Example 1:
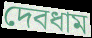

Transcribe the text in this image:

দেবধাম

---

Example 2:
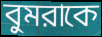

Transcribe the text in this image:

বুমরাকে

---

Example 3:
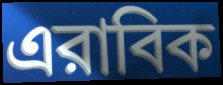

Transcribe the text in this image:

এরাবিক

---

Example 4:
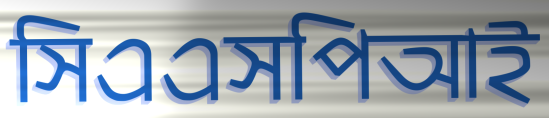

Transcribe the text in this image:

সিএএসপিআই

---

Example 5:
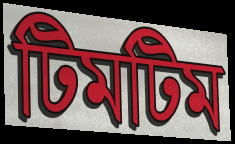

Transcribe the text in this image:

টিমটিম